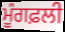
ਮੂੰਗਫ਼ਲੀ